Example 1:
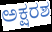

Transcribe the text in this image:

ಅಕ್ಷರಶ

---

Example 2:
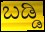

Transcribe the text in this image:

ಬಡ್ಡಿ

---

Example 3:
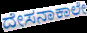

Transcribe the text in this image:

ದೇಸನಾಕಾಲೇ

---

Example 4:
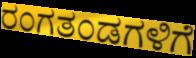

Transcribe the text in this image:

ರಂಗತಂಡಗಳಿಗೆ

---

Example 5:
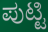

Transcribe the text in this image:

ಪುಟ್ಟಿ